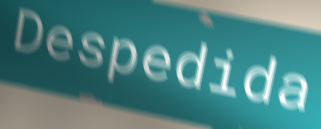
Despedida